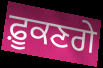
ਫ਼ੂਕਣਗੇ